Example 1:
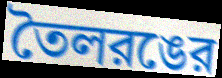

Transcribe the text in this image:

তৈলরঙের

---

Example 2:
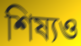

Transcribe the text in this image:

শিষ্যও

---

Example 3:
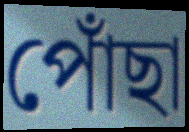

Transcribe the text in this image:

পোঁছা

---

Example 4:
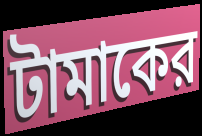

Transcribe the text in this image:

টামাকের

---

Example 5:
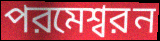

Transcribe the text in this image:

পরমেশ্বরন